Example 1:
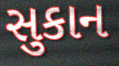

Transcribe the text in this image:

સુકાન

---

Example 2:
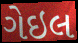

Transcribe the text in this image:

ગેઇલ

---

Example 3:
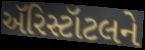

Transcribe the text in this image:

ઍરિસ્ટૉટલને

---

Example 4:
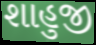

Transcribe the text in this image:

શાહુજી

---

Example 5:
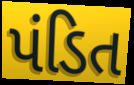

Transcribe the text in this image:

પંડિત